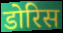
डोरिस